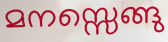
മനസ്സെങ്ങു